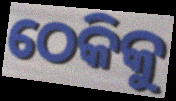
ଠେକିକୁ